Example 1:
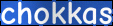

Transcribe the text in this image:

chokkas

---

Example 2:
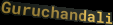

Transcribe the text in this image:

Guruchandali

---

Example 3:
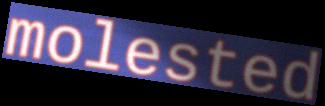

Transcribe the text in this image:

molested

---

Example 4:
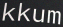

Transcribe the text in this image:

kkum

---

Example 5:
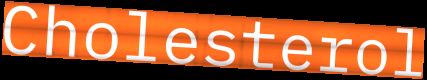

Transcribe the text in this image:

Cholesterol